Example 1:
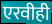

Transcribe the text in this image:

एरवीही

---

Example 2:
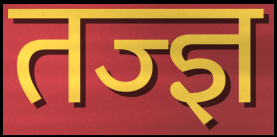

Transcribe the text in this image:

तज्‍ज्ञ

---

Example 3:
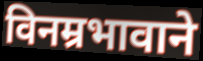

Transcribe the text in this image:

विनम्रभावाने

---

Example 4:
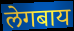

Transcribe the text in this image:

लेगबाय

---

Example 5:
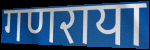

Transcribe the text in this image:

गणराया